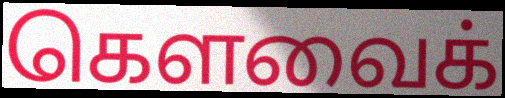
கௌவைக்